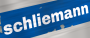
schliemann